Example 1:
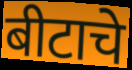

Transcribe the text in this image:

बीटाचे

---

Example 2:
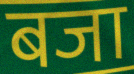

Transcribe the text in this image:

बजा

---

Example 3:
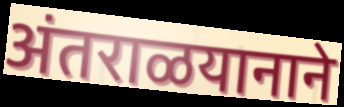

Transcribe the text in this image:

अंतराळयानाने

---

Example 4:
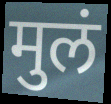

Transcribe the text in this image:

मुलं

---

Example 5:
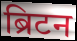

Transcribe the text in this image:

ब्रिटन